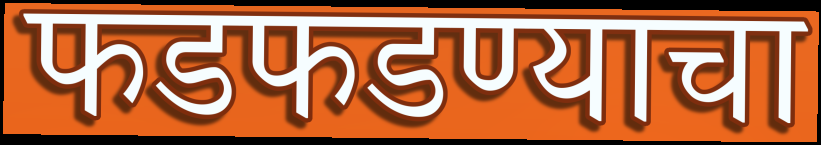
फडफडण्याचा